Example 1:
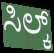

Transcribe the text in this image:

ಸಿಲ್ಕ್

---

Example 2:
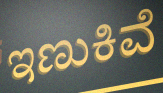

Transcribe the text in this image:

ಇಣುಕಿವೆ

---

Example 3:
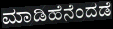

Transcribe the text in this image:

ಮಾಡಿಹೆನೆಂದಡೆ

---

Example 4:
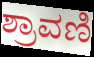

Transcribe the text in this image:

ಶ್ರಾವಣಿ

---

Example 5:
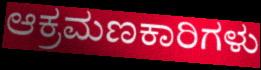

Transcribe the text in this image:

ಆಕ್ರಮಣಕಾರಿಗಳು